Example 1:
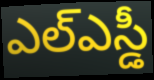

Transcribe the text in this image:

ఎల్ఎస్డీ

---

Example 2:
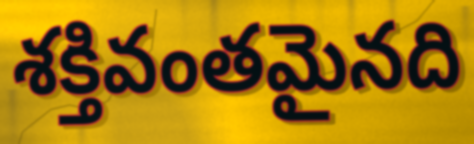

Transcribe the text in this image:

శక్తివంతమైనది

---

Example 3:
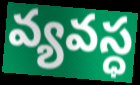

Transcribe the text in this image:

వ్యవస్ధ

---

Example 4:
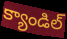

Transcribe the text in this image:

క్యాండిల్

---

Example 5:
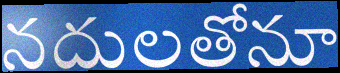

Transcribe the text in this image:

నదులతోనూ